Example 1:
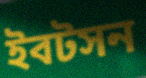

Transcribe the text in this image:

ইবটসন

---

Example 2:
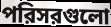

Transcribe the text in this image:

পরিসরগুলো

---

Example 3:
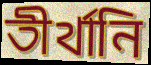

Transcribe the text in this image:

তীর্থানি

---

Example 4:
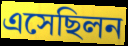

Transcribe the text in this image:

এসেছিলন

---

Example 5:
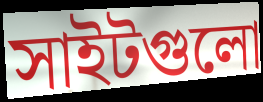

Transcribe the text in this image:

সাইটগুলো